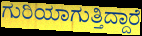
ಗುರಿಯಾಗುತ್ತಿದ್ದಾರೆ